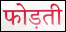
फोड़ती